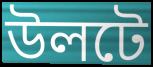
উলটে